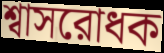
শ্বাসরোধক